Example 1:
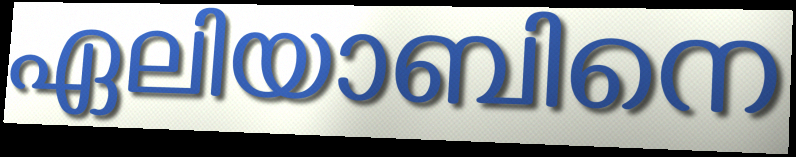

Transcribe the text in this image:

ഏലിയാബിനെ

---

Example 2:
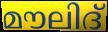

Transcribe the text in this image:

മൗലിദ്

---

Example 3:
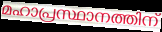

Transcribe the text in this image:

മഹാപ്രസ്ഥാനത്തിന്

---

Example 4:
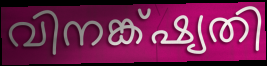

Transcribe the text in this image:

വിനങ്ക്ഷ്യതി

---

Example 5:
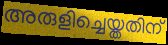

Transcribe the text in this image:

അരുളിച്ചെയ്തതിന്